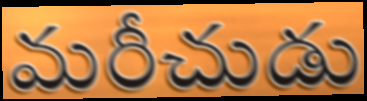
మరీచుడు